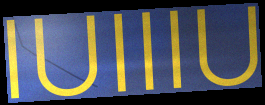
IUIIIU